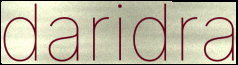
daridra